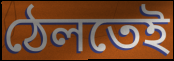
ঠেলতেই